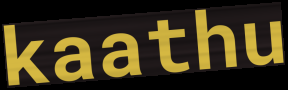
kaathu